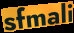
sfmali